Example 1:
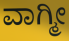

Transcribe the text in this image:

ವಾಗ್ಮೀ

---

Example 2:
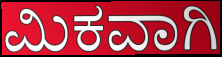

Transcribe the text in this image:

ಮಿಕವಾಗಿ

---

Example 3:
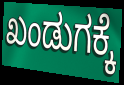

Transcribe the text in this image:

ಖಂಡುಗಕ್ಕೆ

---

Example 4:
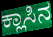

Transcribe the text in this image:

ಕ್ಲಾಸಿನ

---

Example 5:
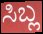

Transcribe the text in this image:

ಸಿಬ್ಲ